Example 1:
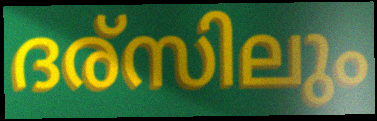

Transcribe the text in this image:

ദര്സിലും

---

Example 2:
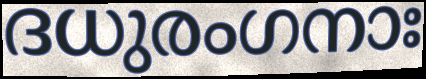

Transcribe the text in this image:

ദധുരംഗനാഃ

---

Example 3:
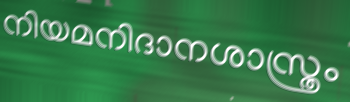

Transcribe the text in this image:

നിയമനിദാനശാസ്ത്രം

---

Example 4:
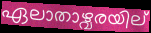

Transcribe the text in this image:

ഏലാതാഴ്വരയില്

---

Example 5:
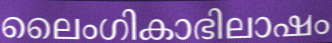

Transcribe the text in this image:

ലൈംഗികാഭിലാഷം